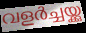
വളർച്ചയ്ക്കു